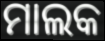
ମାଲକ